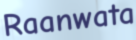
Raanwata